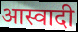
आस्वादी